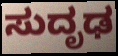
ಸುದೃಢ